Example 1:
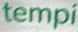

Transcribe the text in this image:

tempi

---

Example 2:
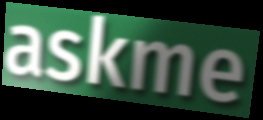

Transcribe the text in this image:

askme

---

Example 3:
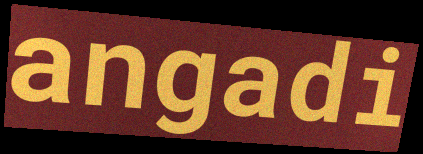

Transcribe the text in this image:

angadi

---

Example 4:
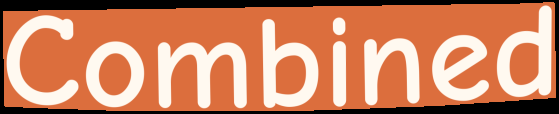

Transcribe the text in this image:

Combined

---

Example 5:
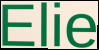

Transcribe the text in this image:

Elie